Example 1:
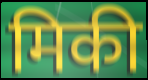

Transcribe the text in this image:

मिकी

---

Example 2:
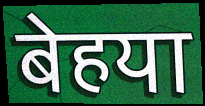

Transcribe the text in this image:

बेहया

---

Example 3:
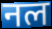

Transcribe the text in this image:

नल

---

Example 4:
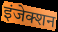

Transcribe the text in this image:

इंजेक्शन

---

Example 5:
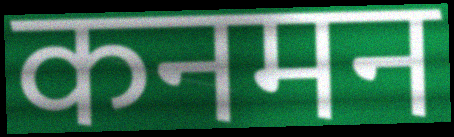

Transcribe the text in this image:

कनमन